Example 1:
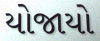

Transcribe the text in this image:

યોજાયો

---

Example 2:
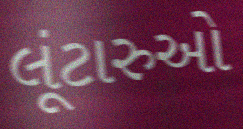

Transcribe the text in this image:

લૂંટારુઓ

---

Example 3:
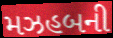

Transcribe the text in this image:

મઝહબની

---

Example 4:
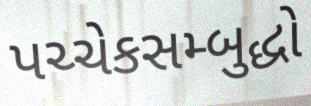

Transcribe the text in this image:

પચ્ચેકસમ્બુદ્ધો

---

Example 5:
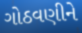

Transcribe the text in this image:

ગોઠવણીને